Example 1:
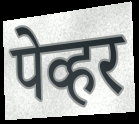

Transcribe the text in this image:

पेव्हर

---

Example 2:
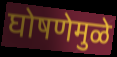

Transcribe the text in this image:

घोषणेमुळे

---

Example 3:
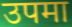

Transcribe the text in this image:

उपमा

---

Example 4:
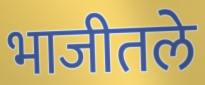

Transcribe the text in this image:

भाजीतले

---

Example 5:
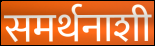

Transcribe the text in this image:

समर्थनाशी